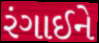
રંગાઈને